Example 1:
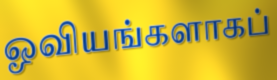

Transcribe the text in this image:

ஓவியங்களாகப்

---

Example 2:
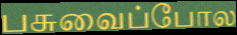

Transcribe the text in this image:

பசுவைப்போல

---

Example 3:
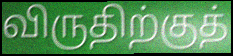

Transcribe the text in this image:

விருதிற்குத்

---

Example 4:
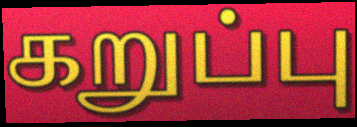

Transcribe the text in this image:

கறுப்பு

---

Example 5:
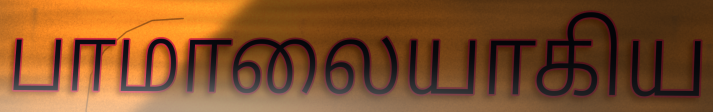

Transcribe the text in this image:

பாமாலையாகிய